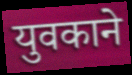
युवकाने